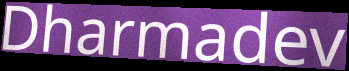
Dharmadev